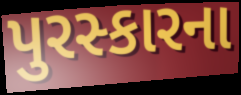
પુરસ્કારના